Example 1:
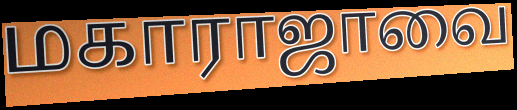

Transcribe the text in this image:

மகாராஜாவை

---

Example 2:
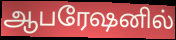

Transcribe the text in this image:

ஆபரேஷனில்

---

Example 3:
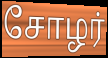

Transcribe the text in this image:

சோழர்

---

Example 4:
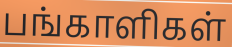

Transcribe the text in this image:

பங்காளிகள்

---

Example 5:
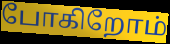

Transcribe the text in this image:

போகிறோம்